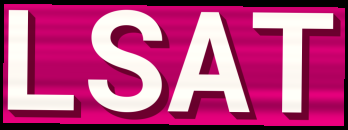
LSAT